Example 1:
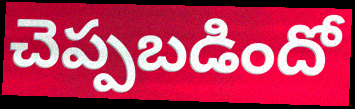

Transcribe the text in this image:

చెప్పబడిందో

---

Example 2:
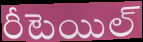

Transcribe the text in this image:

రీటెయిల్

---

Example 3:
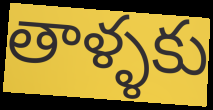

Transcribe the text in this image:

తాళ్ళకు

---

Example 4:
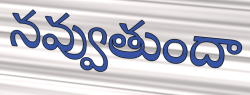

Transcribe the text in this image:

నవ్వుతుందా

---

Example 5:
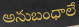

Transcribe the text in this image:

అనుబంధాలే